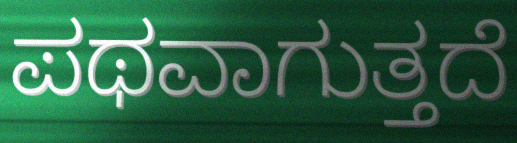
ಪಥವಾಗುತ್ತದೆ